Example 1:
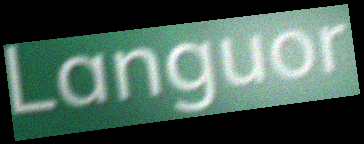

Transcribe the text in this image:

Languor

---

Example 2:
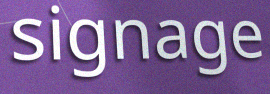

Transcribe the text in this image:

signage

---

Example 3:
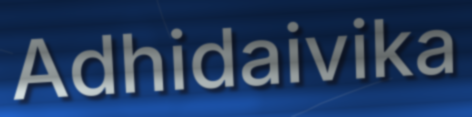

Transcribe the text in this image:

Adhidaivika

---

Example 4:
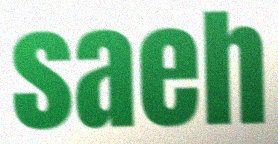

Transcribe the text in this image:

saeh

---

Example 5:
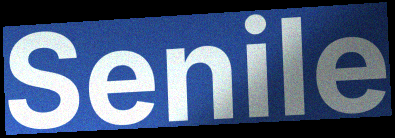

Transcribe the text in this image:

Senile